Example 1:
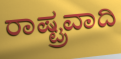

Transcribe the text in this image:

ರಾಷ್ಟ್ರವಾದಿ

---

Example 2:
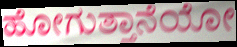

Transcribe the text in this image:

ಹೋಗುತ್ತಾನೆಯೋ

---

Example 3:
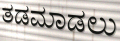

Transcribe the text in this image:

ತಡಮಾಡಲು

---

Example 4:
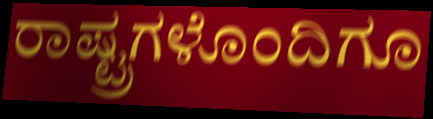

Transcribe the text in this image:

ರಾಷ್ಟ್ರಗಳೊಂದಿಗೂ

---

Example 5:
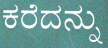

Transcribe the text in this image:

ಕರೆದನ್ನು